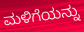
ಮಳಿಗೆಯನ್ನು